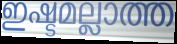
ഇഷ്ടമല്ലാത്ത